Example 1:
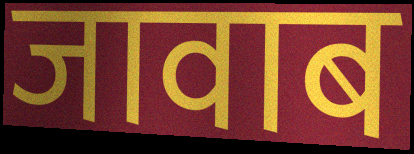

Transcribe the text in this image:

जावाब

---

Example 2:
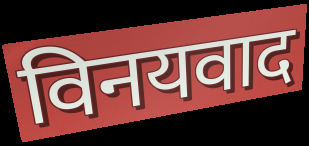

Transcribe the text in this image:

विनयवाद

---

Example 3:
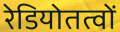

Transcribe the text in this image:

रेडियोतत्वों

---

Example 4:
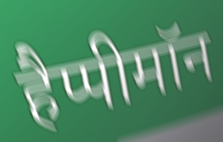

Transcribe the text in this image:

हैप्पीमॉन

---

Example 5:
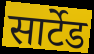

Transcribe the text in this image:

सार्टेड